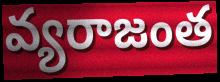
వ్యరాజంత